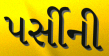
પર્સીની